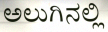
ಅಲುಗಿನಲ್ಲಿ